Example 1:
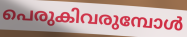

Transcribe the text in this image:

പെരുകിവരുമ്പോൾ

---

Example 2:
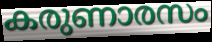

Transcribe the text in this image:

കരുണാരസം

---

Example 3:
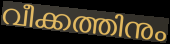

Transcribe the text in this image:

വീക്കത്തിനും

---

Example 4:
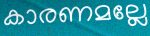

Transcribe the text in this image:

കാരണമല്ലേ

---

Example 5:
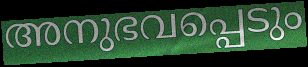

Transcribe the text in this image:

അനുഭവപ്പെടും